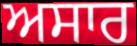
ਅਸਾਰ